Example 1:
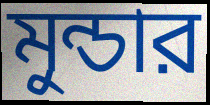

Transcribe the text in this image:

মুন্ডার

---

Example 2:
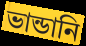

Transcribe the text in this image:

ভান্ডানি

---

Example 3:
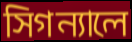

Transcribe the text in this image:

সিগন্যালে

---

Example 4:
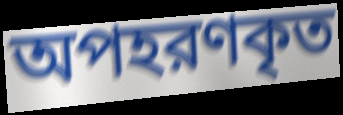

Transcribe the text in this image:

অপহরণকৃত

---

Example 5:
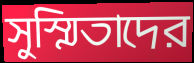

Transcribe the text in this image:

সুস্মিতাদের